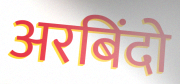
अरबिंदो